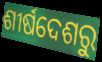
ଶୀର୍ଷଦେଶରୁ